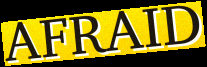
AFRAID